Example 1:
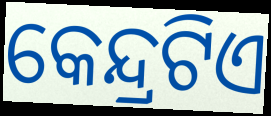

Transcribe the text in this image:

କେନ୍ଦ୍ରଟିଏ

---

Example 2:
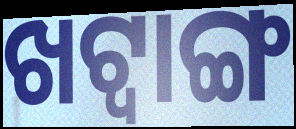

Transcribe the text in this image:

ଖଟ୍ଵାଙ୍ଗ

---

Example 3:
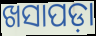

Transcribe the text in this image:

ଖସାପଡ଼ା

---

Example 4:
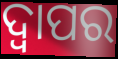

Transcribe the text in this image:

ଦ୍ୱାପର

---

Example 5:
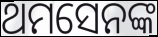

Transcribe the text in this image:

ଥମସେନଙ୍କ